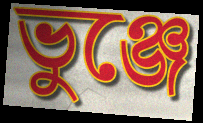
ভুঞ্জে